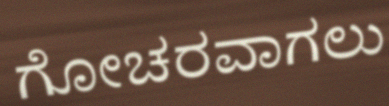
ಗೋಚರವಾಗಲು